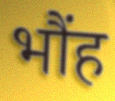
भौंह